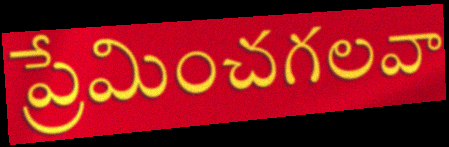
ప్రేమించగలవా